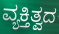
ವ್ಯಕ್ತಿತ್ವದ